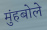
मुंहबोले